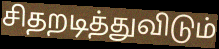
சிதறடித்துவிடும்